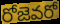
రోజెవరో